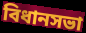
বিধানসভা